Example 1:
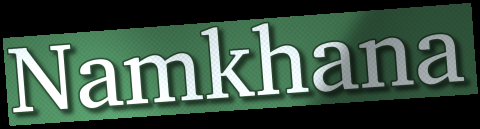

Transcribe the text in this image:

Namkhana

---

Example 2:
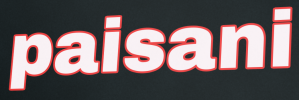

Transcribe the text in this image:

paisani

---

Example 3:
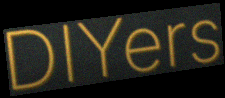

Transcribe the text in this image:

DIYers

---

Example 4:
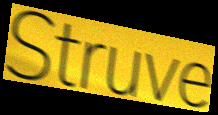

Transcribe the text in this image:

Struve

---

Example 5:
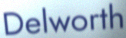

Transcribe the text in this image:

Delworth